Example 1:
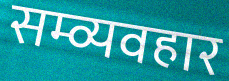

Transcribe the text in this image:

सम्व्यवहार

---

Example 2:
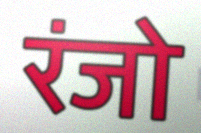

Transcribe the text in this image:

रंजो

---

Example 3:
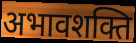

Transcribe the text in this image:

अभावशक्ति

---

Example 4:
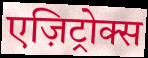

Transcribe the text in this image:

एज़िट्रोक्स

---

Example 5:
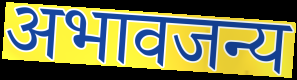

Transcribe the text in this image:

अभावजन्य